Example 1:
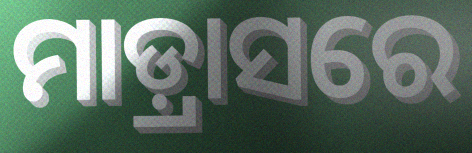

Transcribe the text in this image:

ମାଡ଼୍ରାସରେ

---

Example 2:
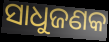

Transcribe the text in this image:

ସାଧୁଜଣକ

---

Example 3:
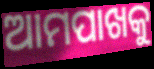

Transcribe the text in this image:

ଆମପାଖକୁ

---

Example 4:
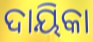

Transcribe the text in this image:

ଦାୟିକା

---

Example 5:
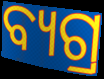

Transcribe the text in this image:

ବ୍ୟଗ୍ର